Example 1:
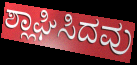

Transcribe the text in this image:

ಶ್ಲಾಘಿಸಿದವು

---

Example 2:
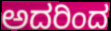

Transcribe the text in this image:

ಅದರಿಂದ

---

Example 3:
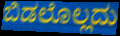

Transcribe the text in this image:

ಬಿಡಲೊಲ್ಲದು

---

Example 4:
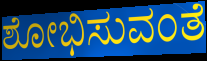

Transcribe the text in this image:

ಶೋಭಿಸುವಂತೆ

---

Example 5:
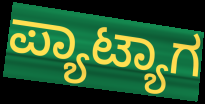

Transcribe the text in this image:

ಪ್ಯಾಟ್ಯಾಗ